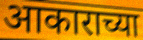
आकाराच्या